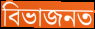
বিভাজনত